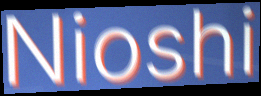
Nioshi